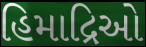
હિમાદ્રિઓ